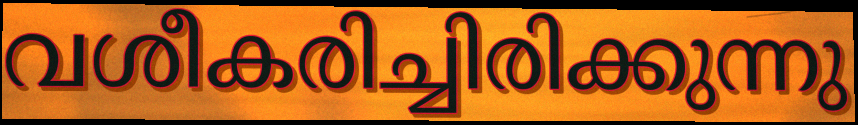
വശീകരിച്ചിരിക്കുന്നു